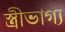
স্ত্রীভাগ্য